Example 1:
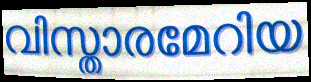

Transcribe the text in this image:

വിസ്താരമേറിയ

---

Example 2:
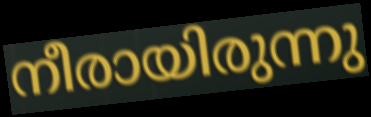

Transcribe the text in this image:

നീരായിരുന്നു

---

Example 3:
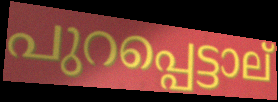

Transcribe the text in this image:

പുറപ്പെട്ടാല്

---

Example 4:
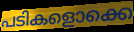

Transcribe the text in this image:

പടികളൊക്കെ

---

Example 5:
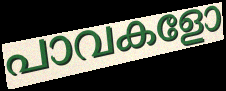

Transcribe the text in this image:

പാവകളോ